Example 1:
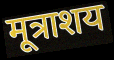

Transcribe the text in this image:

मूत्राशय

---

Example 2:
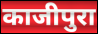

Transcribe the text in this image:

काजीपुरा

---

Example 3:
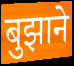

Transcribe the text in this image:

बुझाने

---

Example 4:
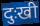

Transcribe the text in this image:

दुःखी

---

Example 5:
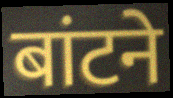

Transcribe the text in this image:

बांटने